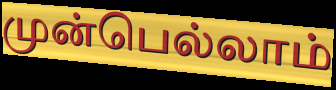
முன்பெல்லாம்